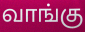
வாங்கு